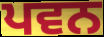
ਪਵਨ